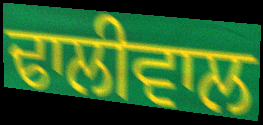
ਢਾਲੀਵਾਲ